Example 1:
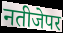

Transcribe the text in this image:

नतीजेपर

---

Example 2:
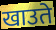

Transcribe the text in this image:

खाउते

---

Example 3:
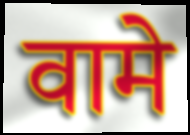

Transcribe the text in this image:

वामे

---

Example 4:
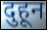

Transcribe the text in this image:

दुहून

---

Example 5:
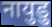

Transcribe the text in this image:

नायुडु